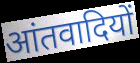
आंतवादियों